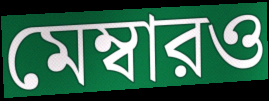
মেম্বারও